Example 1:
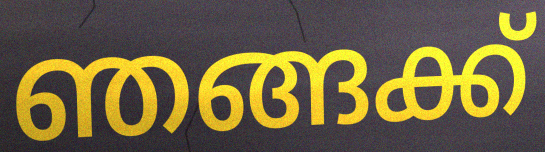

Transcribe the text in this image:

ഞങ്ങക്ക്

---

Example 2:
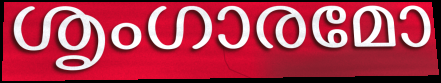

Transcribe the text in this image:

ശൃംഗാരമോ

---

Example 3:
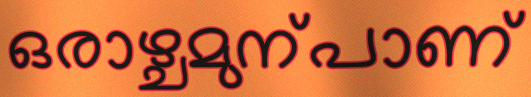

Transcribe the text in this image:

ഒരാഴ്ചമുന്പാണ്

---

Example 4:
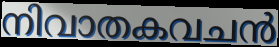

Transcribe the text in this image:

നിവാതകവചൻ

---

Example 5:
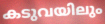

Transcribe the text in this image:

കടുവയിലും